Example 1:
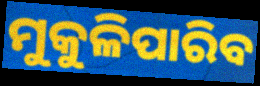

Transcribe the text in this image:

ମୁକୁଳିପାରିବ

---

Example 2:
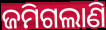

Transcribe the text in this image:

ଜମିଗଲାଣି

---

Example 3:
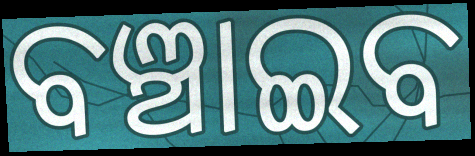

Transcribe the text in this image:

ବଞ୍ଚାଇବ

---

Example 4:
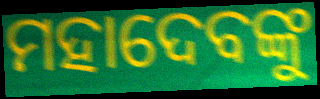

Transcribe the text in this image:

ମହାଦେବଙ୍କୁ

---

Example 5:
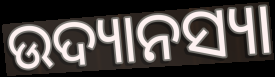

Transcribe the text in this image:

ଉଦ୍ୟାନସ୍ୟା